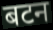
बटन